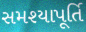
સમશ્યાપૂર્તિ